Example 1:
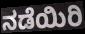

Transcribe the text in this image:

ನಡೆಯಿರಿ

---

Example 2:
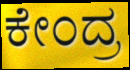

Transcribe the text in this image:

ಕೇಂದ್ರ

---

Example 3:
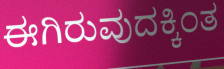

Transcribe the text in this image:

ಈಗಿರುವುದಕ್ಕಿಂತ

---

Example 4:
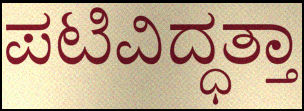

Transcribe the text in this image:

ಪಟಿವಿದ್ಧತ್ತಾ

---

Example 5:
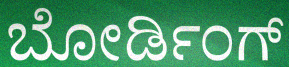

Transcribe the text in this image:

ಬೋರ್ಡಿಂಗ್